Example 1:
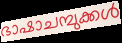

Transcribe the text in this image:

ഭാഷാചമ്പുക്കൾ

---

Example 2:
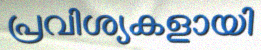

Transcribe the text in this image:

പ്രവിശ്യകളായി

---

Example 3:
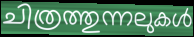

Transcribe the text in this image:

ചിത്രത്തുന്നലുകൾ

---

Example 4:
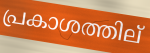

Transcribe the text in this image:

പ്രകാശത്തില്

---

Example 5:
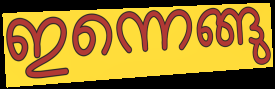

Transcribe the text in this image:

ഇന്നെങ്ങു